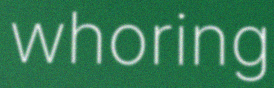
whoring